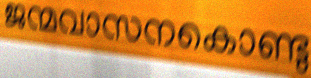
ജന്മവാസനകൊണ്ടു